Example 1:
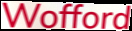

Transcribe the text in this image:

Wofford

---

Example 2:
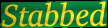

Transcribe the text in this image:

Stabbed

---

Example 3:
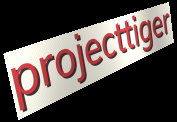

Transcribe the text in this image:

projecttiger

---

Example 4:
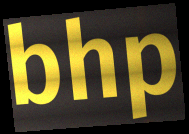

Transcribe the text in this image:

bhp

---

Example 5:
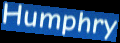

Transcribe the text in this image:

Humphry